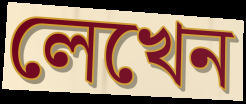
লেখেন